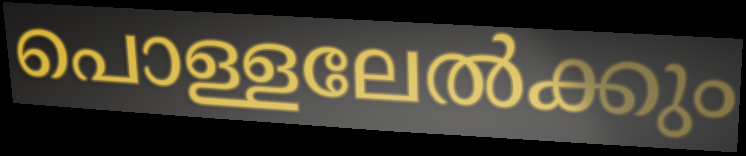
പൊള്ളലേൽക്കും